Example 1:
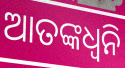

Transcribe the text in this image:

ଆତଙ୍କଧ୍ଵନି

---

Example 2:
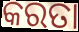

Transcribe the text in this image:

କରତା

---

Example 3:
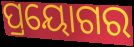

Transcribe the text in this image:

ପ୍ରୟୋଗର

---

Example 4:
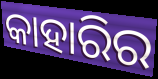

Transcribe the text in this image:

କାହାରିର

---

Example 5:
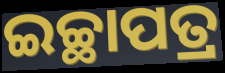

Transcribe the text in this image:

ଇଚ୍ଛାପତ୍ର